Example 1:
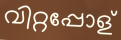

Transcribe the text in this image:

വിറ്റപ്പോള്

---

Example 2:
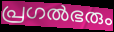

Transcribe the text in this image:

പ്രഗൽഭരും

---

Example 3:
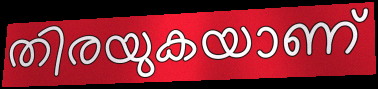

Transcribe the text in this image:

തിരയുകയാണ്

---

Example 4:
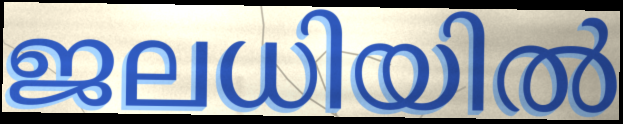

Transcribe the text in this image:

ജലധിയിൽ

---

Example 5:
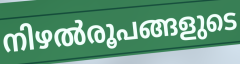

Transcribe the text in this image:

നിഴൽരൂപങ്ങളുടെ